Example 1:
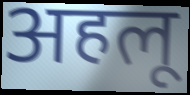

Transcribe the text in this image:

अहलू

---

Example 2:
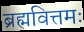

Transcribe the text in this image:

ब्रह्मवित्तमः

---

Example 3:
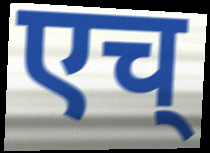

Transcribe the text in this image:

एच्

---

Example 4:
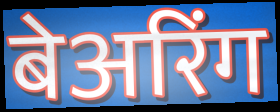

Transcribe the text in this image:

बेअरिंग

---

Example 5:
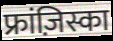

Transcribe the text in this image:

फ्रांज़िस्का